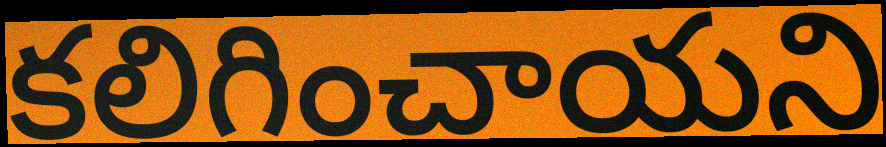
కలిగించాయని